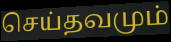
செய்தவமும்